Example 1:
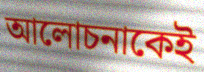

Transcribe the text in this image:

আলোচনাকেই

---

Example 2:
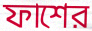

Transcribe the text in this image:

ফাশের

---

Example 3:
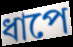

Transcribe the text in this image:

ধাপে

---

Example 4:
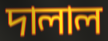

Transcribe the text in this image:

দালাল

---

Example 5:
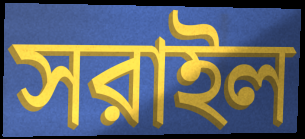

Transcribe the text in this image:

সরাইল